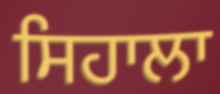
ਸਿਹਾਲਾ